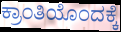
ಕ್ರಾಂತಿಯೊಂದಕ್ಕೆ